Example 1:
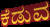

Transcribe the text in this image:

ಕೆಡುವ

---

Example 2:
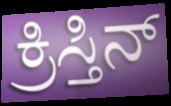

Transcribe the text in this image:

ಕ್ರಿಸ್ತಿನ್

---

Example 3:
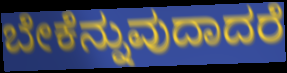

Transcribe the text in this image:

ಬೇಕೆನ್ನುವುದಾದರೆ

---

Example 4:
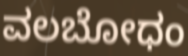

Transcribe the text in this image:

ವಲಬೋಧಂ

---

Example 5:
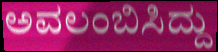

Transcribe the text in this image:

ಅವಲಂಬಿಸಿದ್ದು